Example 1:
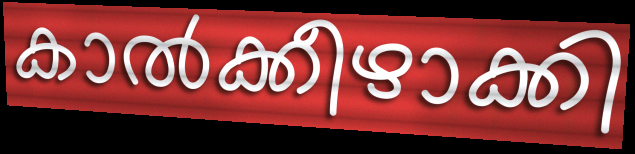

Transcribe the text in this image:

കാൽക്കീഴാക്കി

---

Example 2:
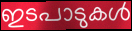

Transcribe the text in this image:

ഇടപാടുകൾ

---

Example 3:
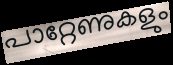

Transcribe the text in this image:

പാറ്റേണുകളും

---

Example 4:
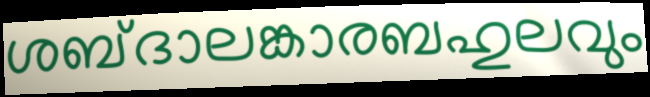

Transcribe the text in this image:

ശബ്ദാലങ്കാരബഹുലവും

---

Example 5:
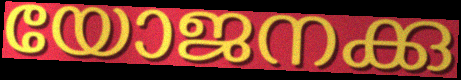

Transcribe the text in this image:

യോജനക്കു